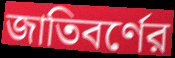
জাতিবর্ণের